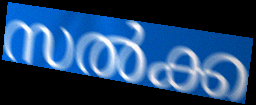
സൽക്ക